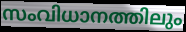
സംവിധാനത്തിലും